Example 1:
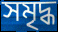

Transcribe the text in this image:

সমৃদ্ধ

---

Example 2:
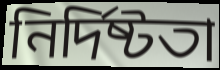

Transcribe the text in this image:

নিৰ্দিষ্টতা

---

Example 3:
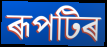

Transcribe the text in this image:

ৰূপটিৰ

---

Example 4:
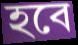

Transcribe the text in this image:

হবে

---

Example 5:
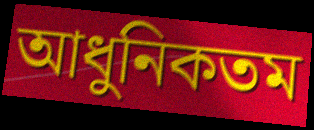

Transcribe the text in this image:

আধুনিকতম